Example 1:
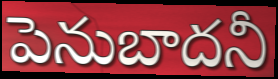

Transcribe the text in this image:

పెనుబాదనీ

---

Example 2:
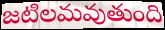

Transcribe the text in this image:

జటిలమవుతుంది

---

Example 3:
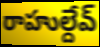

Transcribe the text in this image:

రాహుల్దేవ్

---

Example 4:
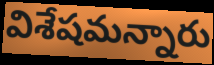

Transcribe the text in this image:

విశేషమన్నారు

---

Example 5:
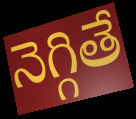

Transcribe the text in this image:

నెగ్గితే